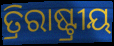
ତ୍ରିରାଷ୍ଟ୍ରୀୟ